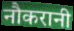
नौकरानी